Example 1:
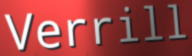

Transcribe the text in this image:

Verrill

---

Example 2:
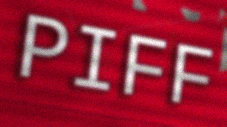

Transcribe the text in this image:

PIFF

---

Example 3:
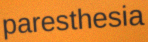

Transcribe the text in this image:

paresthesia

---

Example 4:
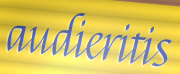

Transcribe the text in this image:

audieritis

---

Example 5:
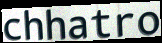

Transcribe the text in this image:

chhatro